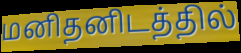
மனிதனிடத்தில்